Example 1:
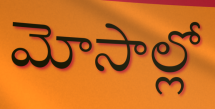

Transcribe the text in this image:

మోసాల్లో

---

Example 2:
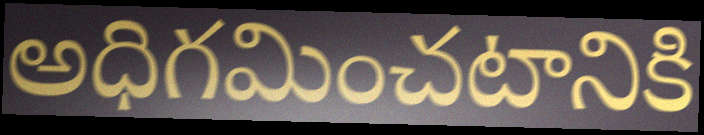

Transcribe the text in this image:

అధిగమించటానికి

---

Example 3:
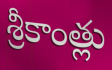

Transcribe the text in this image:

శ్రీకాంత్లు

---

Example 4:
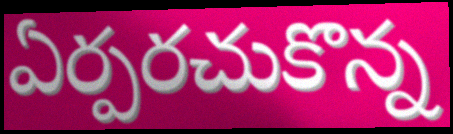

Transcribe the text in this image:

ఏర్పరచుకొన్న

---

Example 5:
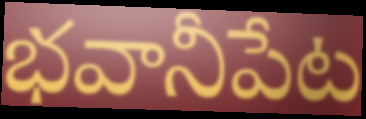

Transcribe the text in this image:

భవానీపేట